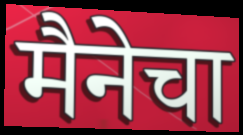
मैनेचा